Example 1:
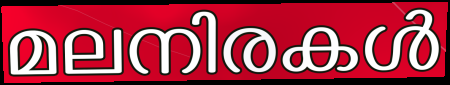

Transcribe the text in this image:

മലനിരകൾ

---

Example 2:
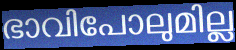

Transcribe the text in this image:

ഭാവിപോലുമില്ല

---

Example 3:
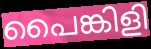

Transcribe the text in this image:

പൈങ്കിളി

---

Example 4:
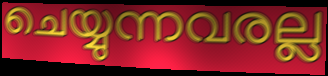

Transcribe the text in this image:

ചെയ്യുന്നവരല്ല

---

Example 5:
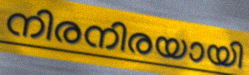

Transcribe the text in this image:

നിരനിരയായി